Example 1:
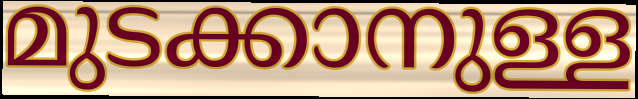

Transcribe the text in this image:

മുടക്കാനുള്ള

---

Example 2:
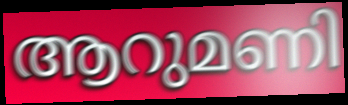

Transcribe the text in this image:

ആറുമണി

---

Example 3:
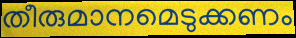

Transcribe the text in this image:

തീരുമാനമെടുക്കണം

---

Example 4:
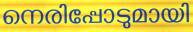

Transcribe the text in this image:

നെരിപ്പോടുമായി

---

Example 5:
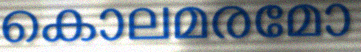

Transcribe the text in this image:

കൊലമരമോ